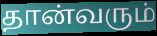
தான்வரும்